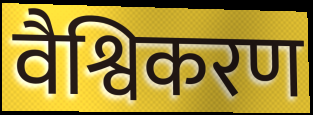
वैश्विकरण